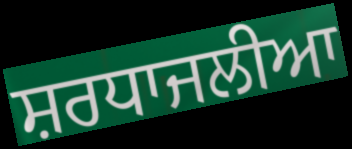
ਸ਼ਰਧਾਜਲੀਆ